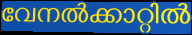
വേനൽക്കാറ്റിൽ